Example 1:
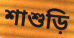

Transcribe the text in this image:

শাশুড়ি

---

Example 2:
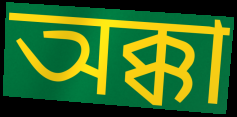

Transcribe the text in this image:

অক্কা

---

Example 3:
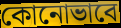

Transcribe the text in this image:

কোনোভাবে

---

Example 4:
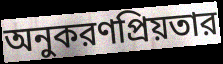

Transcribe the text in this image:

অনুকরণপ্রিয়তার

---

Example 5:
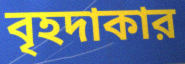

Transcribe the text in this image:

বৃহদাকার